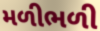
મળીભળી